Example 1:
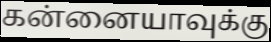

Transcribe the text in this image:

கன்னையாவுக்கு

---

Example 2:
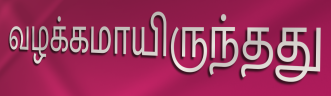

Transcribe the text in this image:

வழக்கமாயிருந்தது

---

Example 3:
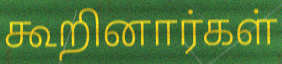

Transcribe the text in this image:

கூறினார்கள்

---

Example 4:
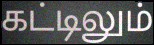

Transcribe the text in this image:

கட்டிலும்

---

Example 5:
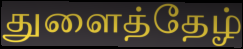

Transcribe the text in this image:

துளைத்தேழ்